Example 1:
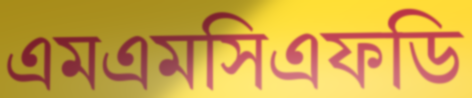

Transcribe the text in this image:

এমএমসিএফডি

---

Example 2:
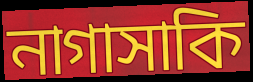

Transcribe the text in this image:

নাগাসাকি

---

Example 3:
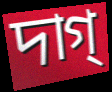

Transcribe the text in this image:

দাগ্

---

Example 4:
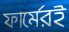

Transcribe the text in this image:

ফার্মেরই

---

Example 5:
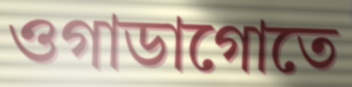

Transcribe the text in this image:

ওগাডাগোতে